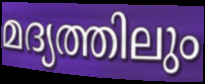
മദ്യത്തിലും